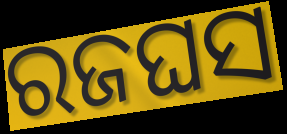
ରଜଘସ